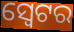
ସ୍ଵେଟର